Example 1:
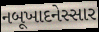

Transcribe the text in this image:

નબૂખાદનેસ્સાર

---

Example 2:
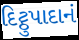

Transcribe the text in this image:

દિટ્ઠુપાદાનં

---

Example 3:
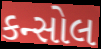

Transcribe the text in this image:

કન્સોલ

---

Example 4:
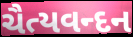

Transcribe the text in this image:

ચૈત્યવન્દન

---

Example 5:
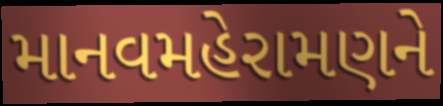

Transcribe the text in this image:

માનવમહેરામણને